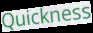
Quickness